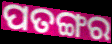
ପତଙ୍ଗର